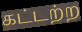
கட்டற்ற